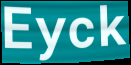
Eyck